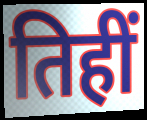
तिहीं